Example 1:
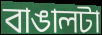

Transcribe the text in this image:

বাঙালটা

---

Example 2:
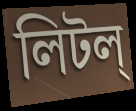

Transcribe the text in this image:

লিটল্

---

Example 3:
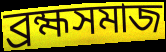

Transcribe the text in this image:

ব্রহ্মসমাজ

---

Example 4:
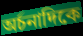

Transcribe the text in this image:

অর্চনাদিকে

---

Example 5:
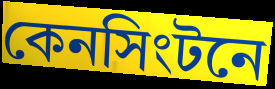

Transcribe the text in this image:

কেনসিংটনে